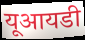
यूआयडी